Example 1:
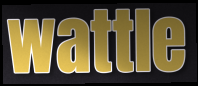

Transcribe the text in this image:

wattle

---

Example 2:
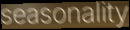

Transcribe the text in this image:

seasonality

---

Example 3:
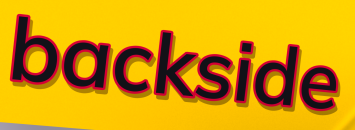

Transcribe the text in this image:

backside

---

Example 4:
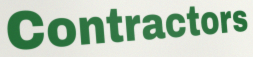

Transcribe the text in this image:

Contractors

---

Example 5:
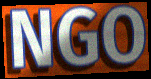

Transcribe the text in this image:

NGO